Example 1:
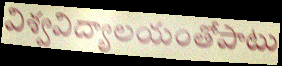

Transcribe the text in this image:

విశ్వవిద్యాలయంతోపాటు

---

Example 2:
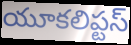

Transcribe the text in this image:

యూకలిప్టస్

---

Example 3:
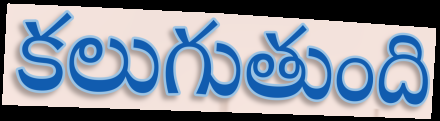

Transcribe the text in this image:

కలుగుతుంది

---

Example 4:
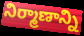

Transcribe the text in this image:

నిర్మాణాన్ని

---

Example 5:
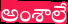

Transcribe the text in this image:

అంశాలే